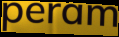
peram